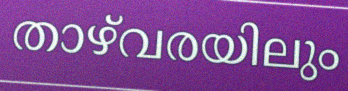
താഴ്‌വരയിലും